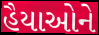
હૈયાઓને